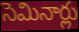
సెమినార్లు